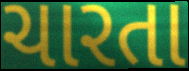
ચારતા